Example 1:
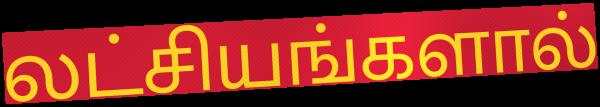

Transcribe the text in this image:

லட்சியங்களால்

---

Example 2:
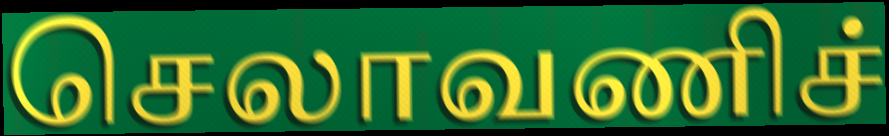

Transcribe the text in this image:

செலாவணிச்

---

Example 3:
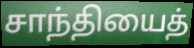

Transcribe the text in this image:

சாந்தியைத்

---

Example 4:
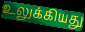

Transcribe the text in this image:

உலுக்கியது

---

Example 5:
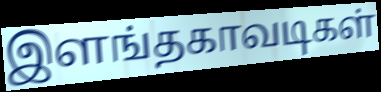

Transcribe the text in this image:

இளங்தகாவடிகள்